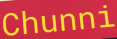
Chunni